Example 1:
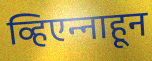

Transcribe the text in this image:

व्हिएन्नाहून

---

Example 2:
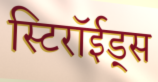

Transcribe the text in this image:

स्टिरॉईड्स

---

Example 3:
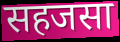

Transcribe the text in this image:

सहजसा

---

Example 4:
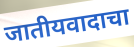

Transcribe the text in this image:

जातीयवादाचा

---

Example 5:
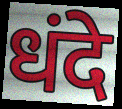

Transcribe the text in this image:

धंदे